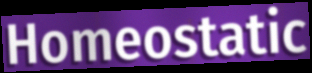
Homeostatic